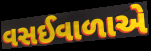
વસઈવાળાએ